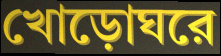
খোড়োঘরে